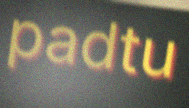
padtu